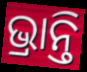
ଭ୍ରାନ୍ତି